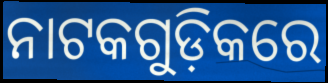
ନାଟକଗୁଡ଼ିକରେ